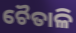
ଚୈତାଳି